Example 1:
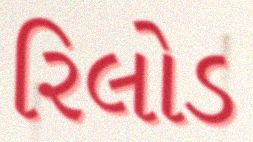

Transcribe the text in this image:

રિલોડ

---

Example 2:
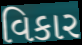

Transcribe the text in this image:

વિકાર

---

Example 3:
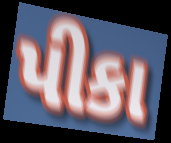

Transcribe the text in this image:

પીકા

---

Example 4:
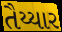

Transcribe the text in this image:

તૈય્યાર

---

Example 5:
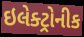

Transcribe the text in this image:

ઇલેક્ટ્રોનીક